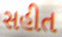
સહીત